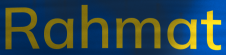
Rahmat